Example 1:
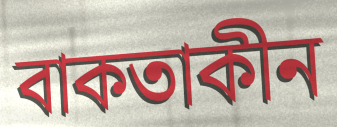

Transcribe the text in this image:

বাকতাকীন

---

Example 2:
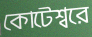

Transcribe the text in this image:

কোটেশ্বরে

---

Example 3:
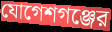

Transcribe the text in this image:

যোগেশগঞ্জের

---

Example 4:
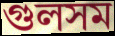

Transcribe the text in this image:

গুলসম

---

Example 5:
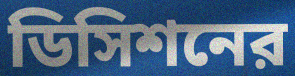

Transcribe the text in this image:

ডিসিশনের